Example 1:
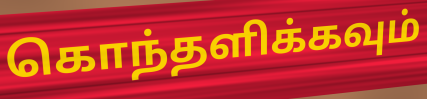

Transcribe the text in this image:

கொந்தளிக்கவும்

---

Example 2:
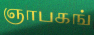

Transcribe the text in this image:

ஞாபகங்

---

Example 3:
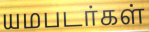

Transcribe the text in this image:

யமபடர்கள்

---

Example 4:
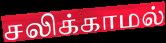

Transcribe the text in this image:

சலிக்காமல்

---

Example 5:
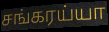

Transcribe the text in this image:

சங்கரய்யா